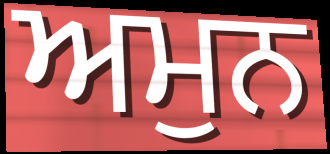
ਅਮੁਨ